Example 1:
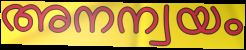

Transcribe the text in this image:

അനന്വയം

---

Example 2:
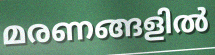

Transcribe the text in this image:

മരണങ്ങളിൽ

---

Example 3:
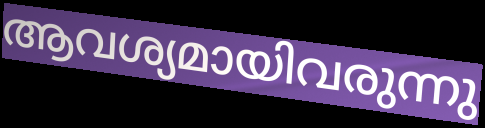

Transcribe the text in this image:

ആവശ്യമായിവരുന്നു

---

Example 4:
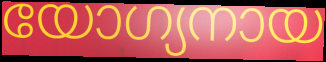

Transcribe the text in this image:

യോഗ്യനായ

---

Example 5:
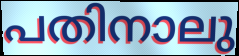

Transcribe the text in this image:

പതിനാലു